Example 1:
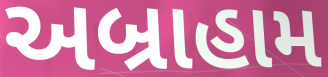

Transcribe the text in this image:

અબ્રાહામ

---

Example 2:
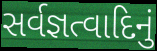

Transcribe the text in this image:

સર્વજ્ઞત્વાદિનું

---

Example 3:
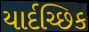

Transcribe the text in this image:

યાર્દચ્છિક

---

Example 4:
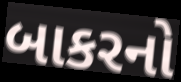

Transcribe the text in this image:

બાકરનો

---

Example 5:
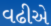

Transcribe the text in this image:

વઢીએ